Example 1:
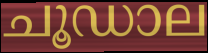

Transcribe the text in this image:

ചൂഡാല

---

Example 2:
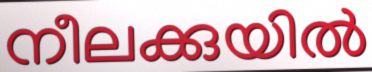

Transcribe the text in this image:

നീലക്കുയിൽ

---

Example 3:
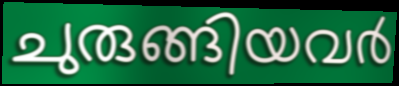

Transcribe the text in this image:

ചുരുങ്ങിയവർ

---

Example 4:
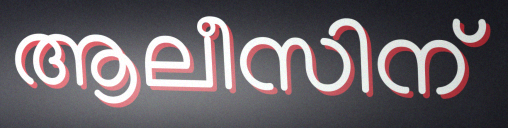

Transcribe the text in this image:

ആലീസിന്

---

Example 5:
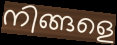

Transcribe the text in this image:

നിങ്ങളെ